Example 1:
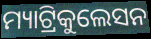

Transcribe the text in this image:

ମ୍ୟାଟ୍ରିକୁଲେସନ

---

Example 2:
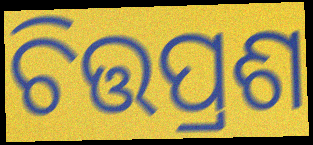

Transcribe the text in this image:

ଚିତ୍ତପ୍ରଶ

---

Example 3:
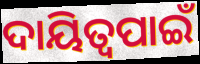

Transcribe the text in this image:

ଦାୟିତ୍ୱପାଇଁ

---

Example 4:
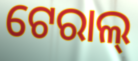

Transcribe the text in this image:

ଟେରାଲ୍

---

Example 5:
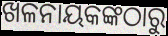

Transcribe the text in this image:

ଖଳନାୟକଙ୍କଠାରୁ